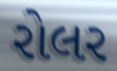
રોલર